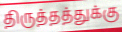
திருத்தத்துக்கு